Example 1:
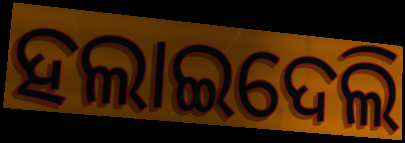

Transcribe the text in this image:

ହଲାଇଦେଲି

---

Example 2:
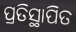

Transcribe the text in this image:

ପ୍ରତିସ୍ଥାପିତ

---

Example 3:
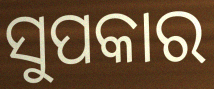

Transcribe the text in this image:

ସୁପକାର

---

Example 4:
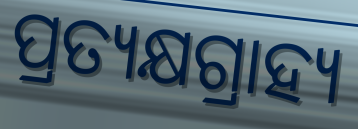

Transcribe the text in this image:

ପ୍ରତ୍ୟକ୍ଷଗ୍ରାହ୍ୟ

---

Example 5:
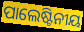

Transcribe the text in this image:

ପାଲେଷ୍ଟିନୀୟ